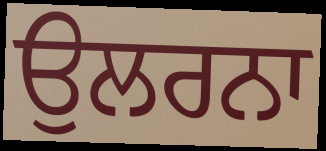
ਉਲਰਨਾ